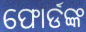
ଫୋର୍ଡଙ୍କ